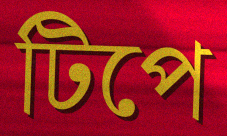
টিপে